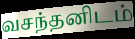
வசந்தனிடம்